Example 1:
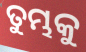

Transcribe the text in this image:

ତୁମ୍ଭକୁ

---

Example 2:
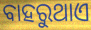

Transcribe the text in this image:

ବାହରୁଥାଏ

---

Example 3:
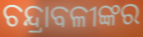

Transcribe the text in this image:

ଚନ୍ଦ୍ରାବଳୀଙ୍କର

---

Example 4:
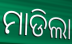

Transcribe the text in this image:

ମାଡିଲା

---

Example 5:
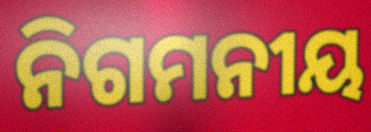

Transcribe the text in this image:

ନିଗମନୀୟ